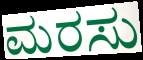
ಮರಸು